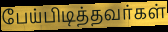
பேய்பிடித்தவர்கள்